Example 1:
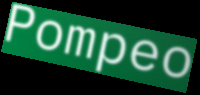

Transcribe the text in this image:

Pompeo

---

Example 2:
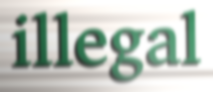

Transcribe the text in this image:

illegal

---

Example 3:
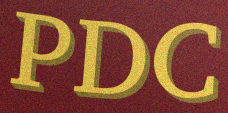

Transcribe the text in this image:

PDC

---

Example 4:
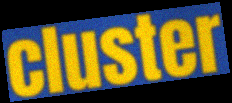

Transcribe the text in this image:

cluster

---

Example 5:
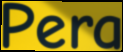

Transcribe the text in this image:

Pera